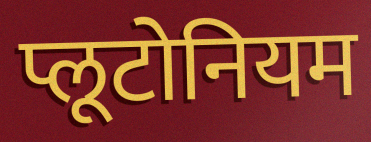
प्लूटोनियम